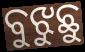
ବୁଝୁଛୁ